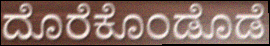
ದೊರೆಕೊಂಡೊಡೆ